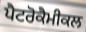
ਪੈਟਰੋਕੈਮੀਕਲ